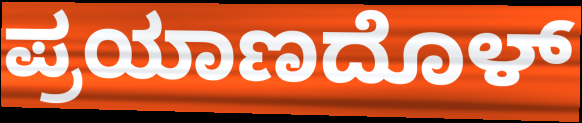
ಪ್ರಯಾಣದೊಳ್